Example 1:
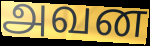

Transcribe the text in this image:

அவன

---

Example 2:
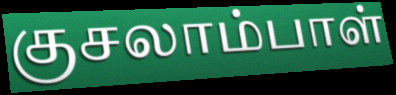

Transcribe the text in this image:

குசலாம்பாள்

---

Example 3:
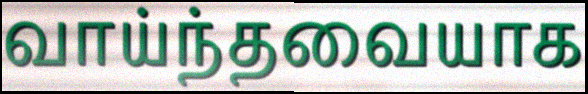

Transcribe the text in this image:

வாய்ந்தவையாக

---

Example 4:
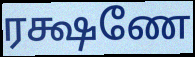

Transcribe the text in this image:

ரக்ஷணே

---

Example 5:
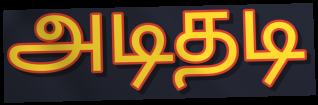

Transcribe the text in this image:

அடிதடி